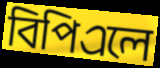
বিপিএলে